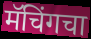
मॅचिंगचा